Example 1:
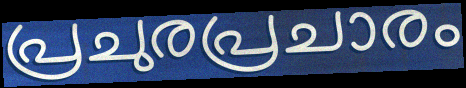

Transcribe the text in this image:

പ്രചുരപ്രചാരം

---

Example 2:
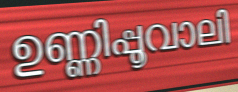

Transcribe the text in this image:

ഉണ്ണിപ്പൂവാലി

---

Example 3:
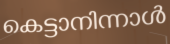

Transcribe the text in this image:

കെട്ടാനിന്നാൾ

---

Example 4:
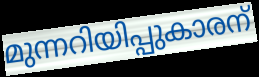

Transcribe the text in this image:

മുന്നറിയിപ്പുകാരന്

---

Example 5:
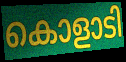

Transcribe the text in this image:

കൊളാടി